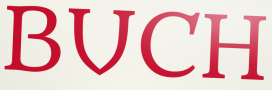
BUCH